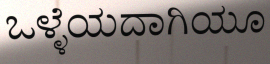
ಒಳ್ಳೆಯದಾಗಿಯೂ